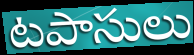
టపాసులు